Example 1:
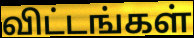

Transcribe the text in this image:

விட்டங்கள்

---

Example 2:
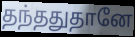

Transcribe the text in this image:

தந்ததுதானே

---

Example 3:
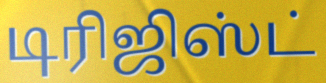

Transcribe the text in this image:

டிரிஜிஸ்ட்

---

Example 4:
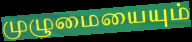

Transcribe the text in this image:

முழுமையையும்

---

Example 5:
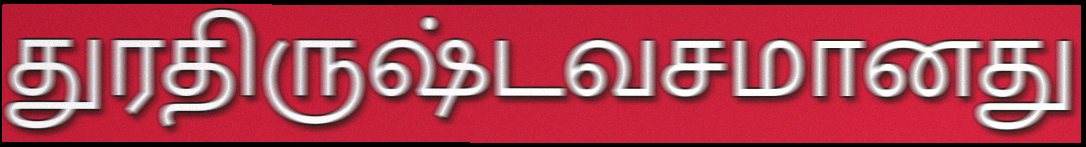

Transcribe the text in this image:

துரதிருஷ்டவசமானது